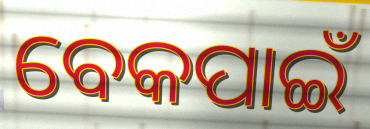
ବେକପାଇଁ